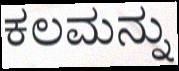
ಕಲಮನ್ನು